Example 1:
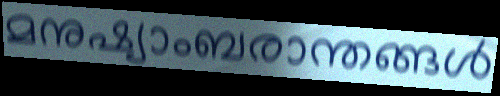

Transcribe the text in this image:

മനുഷ്യാംബരാന്തങ്ങൾ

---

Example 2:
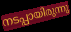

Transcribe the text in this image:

നടപ്പായിരുന്നു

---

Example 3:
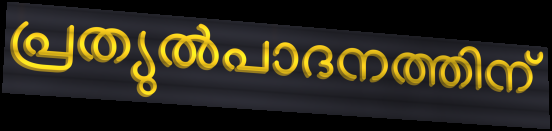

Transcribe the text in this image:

പ്രത്യുൽപാദനത്തിന്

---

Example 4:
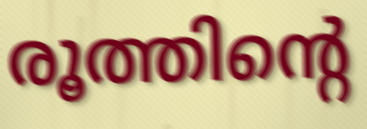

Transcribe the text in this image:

രൂത്തിന്റെ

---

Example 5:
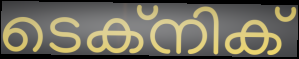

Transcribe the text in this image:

ടെക്നിക്